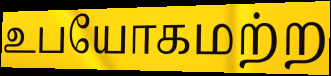
உபயோகமற்ற